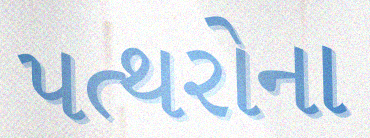
પત્થરોના